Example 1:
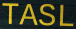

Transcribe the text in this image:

TASL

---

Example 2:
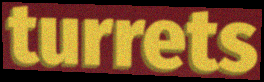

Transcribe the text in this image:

turrets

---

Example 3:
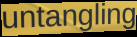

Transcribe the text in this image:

untangling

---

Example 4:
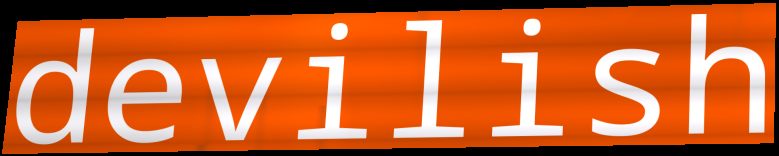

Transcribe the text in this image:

devilish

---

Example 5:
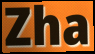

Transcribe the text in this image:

Zha